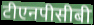
टीएनपीसीबी